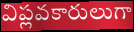
విప్లవకారులుగా